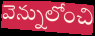
వెన్నులోంచి